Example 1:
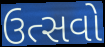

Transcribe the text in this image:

ઉત્સવો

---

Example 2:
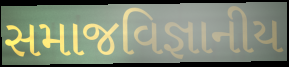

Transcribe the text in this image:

સમાજવિજ્ઞાનીય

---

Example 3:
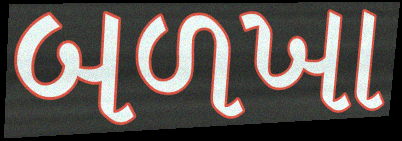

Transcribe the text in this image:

બળખા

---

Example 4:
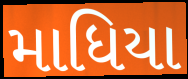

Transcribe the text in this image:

માધિયા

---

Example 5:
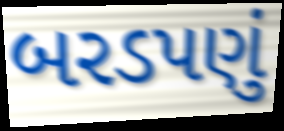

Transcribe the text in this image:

બરડપણું